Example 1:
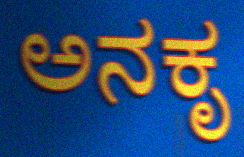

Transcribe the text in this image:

ಅನಕೃ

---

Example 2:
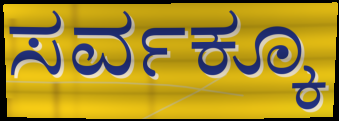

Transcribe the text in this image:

ಸರ್ವಕ್ಕೂ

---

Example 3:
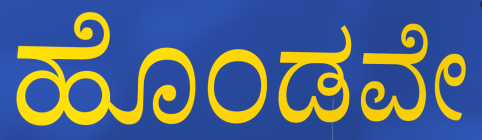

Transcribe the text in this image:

ಹೊಂಡವೇ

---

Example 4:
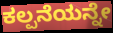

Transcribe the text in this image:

ಕಲ್ಪನೆಯನ್ನೇ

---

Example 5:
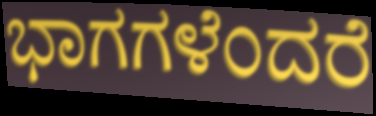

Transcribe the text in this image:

ಭಾಗಗಳೆಂದರೆ